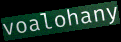
voalohany